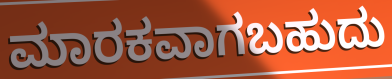
ಮಾರಕವಾಗಬಹುದು